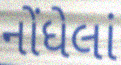
નોંધેલાં